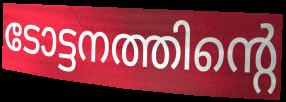
ടോട്ടനത്തിന്റെ